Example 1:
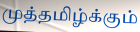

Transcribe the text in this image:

முத்தமிழ்க்கும்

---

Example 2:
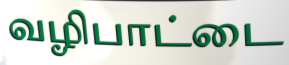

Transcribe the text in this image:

வழிபாட்டை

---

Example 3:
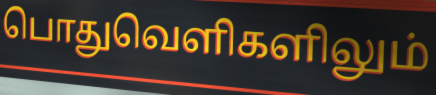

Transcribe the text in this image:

பொதுவெளிகளிலும்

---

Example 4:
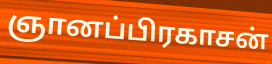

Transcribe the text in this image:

ஞானப்பிரகாசன்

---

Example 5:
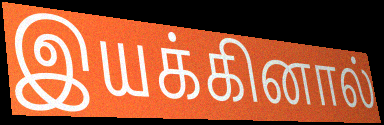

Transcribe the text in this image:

இயக்கினால்